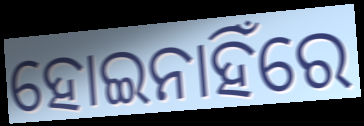
ହୋଇନାହିଁରେ